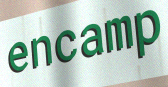
encamp